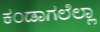
ಕಂಡಾಗಲೆಲ್ಲಾ